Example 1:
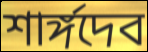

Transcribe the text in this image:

শার্ঙ্গদেব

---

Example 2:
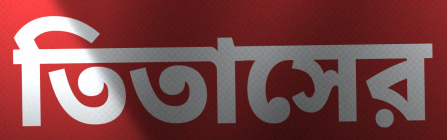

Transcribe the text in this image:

তিতাসের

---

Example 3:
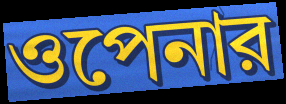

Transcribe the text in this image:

ওপেনার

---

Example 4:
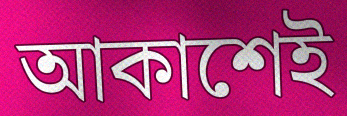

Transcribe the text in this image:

আকাশেই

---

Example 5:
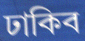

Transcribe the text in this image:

ঢাকিব